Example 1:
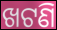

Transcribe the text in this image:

ଖଟଣି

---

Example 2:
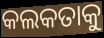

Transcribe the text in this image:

କଲକତାକୁ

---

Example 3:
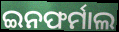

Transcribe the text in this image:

ଇନଫର୍ମାଲ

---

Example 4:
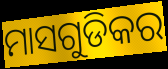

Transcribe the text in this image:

ମାସଗୁଡିକର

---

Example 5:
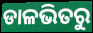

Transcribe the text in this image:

ଡାଳଭିତରୁ